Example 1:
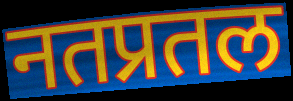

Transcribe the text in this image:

नतप्रतल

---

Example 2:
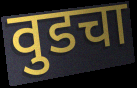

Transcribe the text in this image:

वुडचा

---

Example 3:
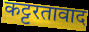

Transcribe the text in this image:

कट्टरतावाद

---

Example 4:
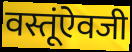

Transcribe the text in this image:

वस्तूंऐवजी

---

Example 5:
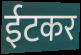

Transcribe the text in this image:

ईटकर